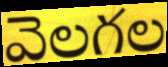
వెలగల